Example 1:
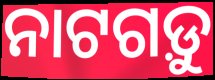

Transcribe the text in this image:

ନାଟଗଡ଼ୁ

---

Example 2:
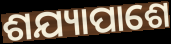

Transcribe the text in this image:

ଶଯ୍ୟାପାଶେ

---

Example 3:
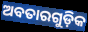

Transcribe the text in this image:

ଅବତାରଗୁଡ଼ିକ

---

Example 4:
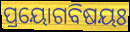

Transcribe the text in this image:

ପ୍ରୟୋଗବିଷୟଃ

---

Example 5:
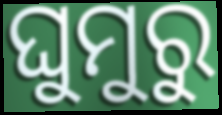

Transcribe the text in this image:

ଘୁମୁରୁ